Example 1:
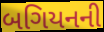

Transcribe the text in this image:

બગિયનની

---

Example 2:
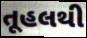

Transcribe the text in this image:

તૂહલથી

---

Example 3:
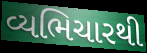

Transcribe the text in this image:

વ્યભિચારથી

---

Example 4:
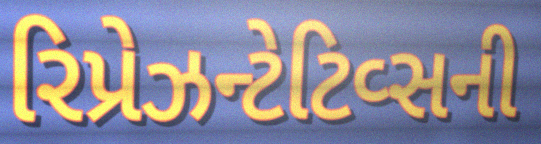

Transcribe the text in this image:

રિપ્રેઝન્ટેટિવ્સની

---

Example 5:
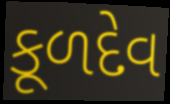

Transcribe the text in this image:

કૂળદેવ